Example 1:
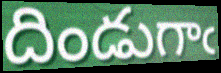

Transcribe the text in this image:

దిండుగాఁ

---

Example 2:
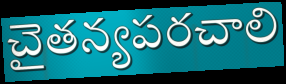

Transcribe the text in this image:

చైతన్యపరచాలి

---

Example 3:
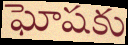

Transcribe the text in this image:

ఘోషకు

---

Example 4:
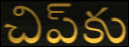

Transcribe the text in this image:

చిప్‌కు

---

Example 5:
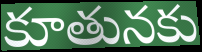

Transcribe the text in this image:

కూతునకు